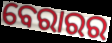
ବେରାରର